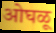
ओघळू